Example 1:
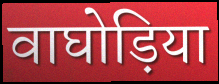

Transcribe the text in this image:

वाघोड़िया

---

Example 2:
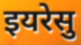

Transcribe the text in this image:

इयरेसु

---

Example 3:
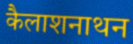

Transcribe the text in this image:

कैलाशनाथन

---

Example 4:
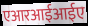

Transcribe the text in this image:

एआरआईआईए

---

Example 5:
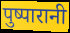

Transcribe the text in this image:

पुष्पारानी